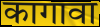
कागावा